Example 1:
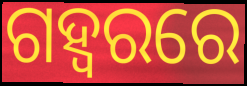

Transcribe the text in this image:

ଗହ୍ୱରରେ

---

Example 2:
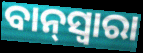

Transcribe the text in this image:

ବାନ୍‌ସ୍ୱାରା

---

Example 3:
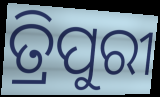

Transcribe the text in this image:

ତ୍ରିପୁରୀ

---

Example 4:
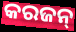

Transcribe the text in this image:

କରଜନ୍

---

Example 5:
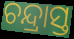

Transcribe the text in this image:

ଚନ୍ଦ୍ରାସ୍ତ